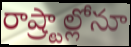
రాష్ర్టాల్లోనూ